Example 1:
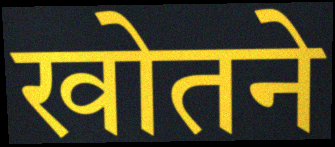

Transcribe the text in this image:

खोतने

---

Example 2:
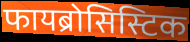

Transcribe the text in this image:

फायब्रोसिस्टिक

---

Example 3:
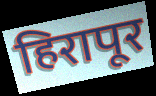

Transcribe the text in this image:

हिरापूर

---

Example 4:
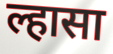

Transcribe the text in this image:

ल्हासा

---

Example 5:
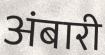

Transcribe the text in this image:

अंबारी